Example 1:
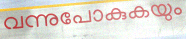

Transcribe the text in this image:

വന്നുപോകുകയും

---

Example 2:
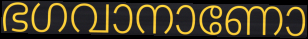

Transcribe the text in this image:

ഭഗവാനാണോ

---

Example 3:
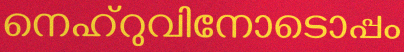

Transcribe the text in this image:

നെഹ്റുവിനോടൊപ്പം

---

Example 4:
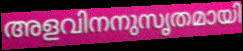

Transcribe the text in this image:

അളവിനനുസൃതമായി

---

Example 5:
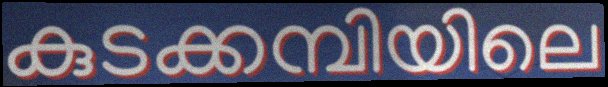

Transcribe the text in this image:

കുടക്കമ്പിയിലെ